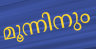
മൂന്നിനും